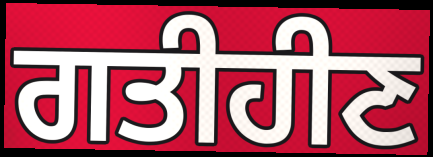
ਗਤੀਹੀਣ